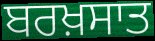
ਬਰਖ਼ਸਾਤ